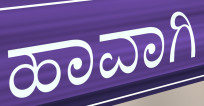
ಹಾವಾಗಿ